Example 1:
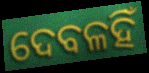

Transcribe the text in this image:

ଦେବଳହିଁ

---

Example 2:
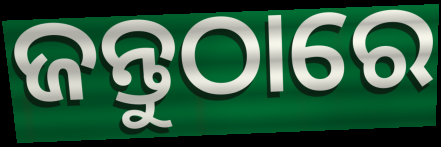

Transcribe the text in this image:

ଜନ୍ତୁଠାରେ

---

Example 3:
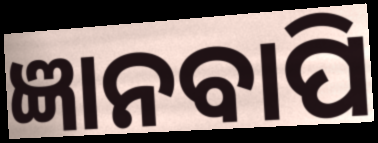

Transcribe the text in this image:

ଜ୍ଞାନବାପି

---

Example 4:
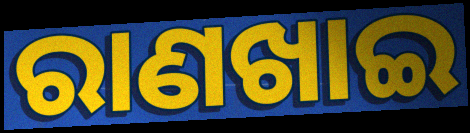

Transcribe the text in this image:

ରାଣଖାଇ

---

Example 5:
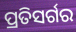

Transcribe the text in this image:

ପ୍ରତିସର୍ଗର